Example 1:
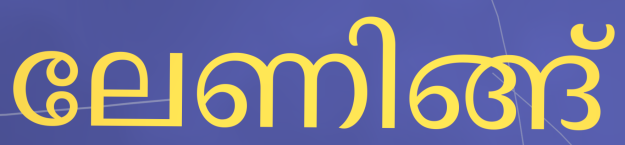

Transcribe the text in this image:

ലേണിങ്ങ്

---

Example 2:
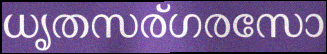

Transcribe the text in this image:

ധൃതസര്ഗരസോ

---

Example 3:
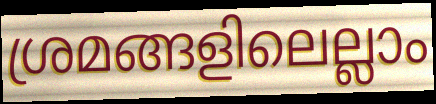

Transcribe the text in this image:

ശ്രമങ്ങളിലെല്ലാം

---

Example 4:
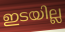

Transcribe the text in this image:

ഇടയില്ല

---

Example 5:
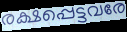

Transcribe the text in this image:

രക്ഷപ്പെട്ടവരേ